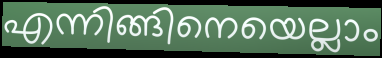
എന്നിങ്ങിനെയെല്ലാം